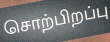
சொற்பிறப்பு